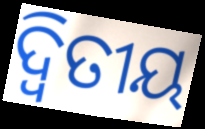
ଦ୍ୱିତୀୟ